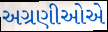
અગ્રણીઓએ